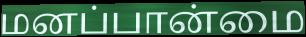
மனப்பான்மை